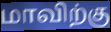
மாவிற்கு